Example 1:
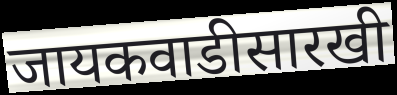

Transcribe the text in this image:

जायकवाडीसारखी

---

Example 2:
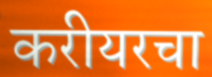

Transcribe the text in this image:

करीयरचा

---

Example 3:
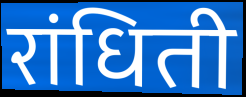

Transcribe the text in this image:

रांधिती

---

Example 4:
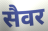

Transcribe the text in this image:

सैवर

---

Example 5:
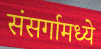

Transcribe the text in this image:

संसर्गामध्ये